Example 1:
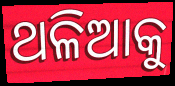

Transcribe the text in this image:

ଥଳିଆକୁ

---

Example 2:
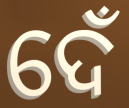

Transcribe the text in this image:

ଦେଁ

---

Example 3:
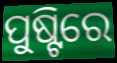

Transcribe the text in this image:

ପୁଷ୍ଟିରେ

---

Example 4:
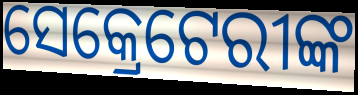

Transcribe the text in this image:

ସେକ୍ରେଟେରୀଙ୍କ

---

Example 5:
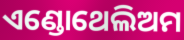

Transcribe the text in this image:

ଏଣ୍ଡୋଥେଲିଅମ